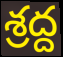
శ్రద్ద